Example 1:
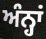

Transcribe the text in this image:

ਅੰਨ੍ਹਾਂ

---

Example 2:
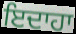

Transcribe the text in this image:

ਇਦਾਹਾ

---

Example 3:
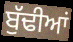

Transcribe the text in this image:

ਬੁੱਢੀਆਂ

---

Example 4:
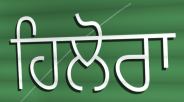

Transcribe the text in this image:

ਹਿਲੋਰਾ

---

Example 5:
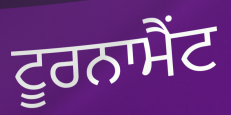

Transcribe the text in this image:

ਟੂਰਨਾਮੈਂਟ